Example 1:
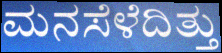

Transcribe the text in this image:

ಮನಸೆಳೆದಿತ್ತು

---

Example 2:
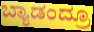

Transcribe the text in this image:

ಬ್ಯಾಡಂದ್ರೂ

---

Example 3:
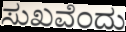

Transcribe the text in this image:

ಸುಖವೆಂದು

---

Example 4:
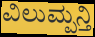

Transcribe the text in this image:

ವಿಲುಮ್ಪನ್ತಿ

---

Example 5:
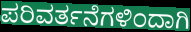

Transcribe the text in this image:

ಪರಿವರ್ತನೆಗಳಿಂದಾಗಿ